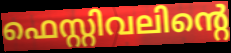
ഫെസ്റ്റിവലിന്റെ